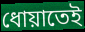
ধোয়াতেই